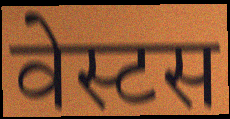
वेस्टस